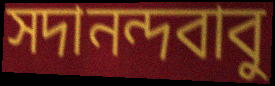
সদানন্দবাবু